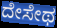
ದೇಸೇಥ